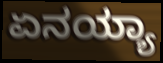
ಏನಯ್ಯಾ